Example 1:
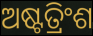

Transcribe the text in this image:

ଅଷ୍ଟତ୍ରିଂଶ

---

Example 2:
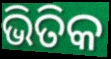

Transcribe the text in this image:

ଭିତିକ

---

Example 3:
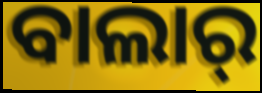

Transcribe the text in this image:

ବାଲାର୍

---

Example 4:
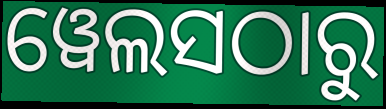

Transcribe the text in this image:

ୱେଲସଠାରୁ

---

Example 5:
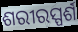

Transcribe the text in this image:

ଶରୀରସ୍ପର୍ଶ